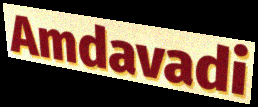
Amdavadi